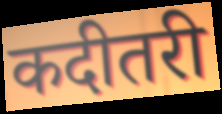
कदीतरी